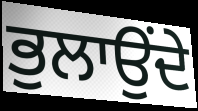
ਭੁਲਾਉਂਦੇ